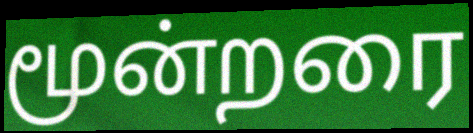
மூன்றரை